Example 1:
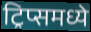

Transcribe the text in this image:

ट्रिप्समध्ये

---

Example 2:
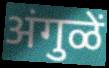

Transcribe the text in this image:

अंगुळें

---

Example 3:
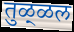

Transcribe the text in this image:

तुळ्‌ळल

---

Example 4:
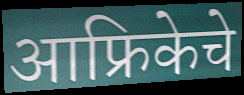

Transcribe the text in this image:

आफ्रिकेचे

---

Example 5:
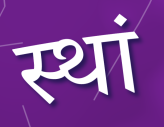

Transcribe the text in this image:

स्थां